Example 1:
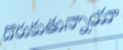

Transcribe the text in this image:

దొరుకుతున్నాయా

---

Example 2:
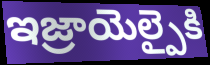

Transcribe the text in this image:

ఇజ్రాయెల్పైకి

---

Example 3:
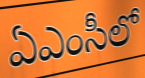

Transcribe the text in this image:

ఏఎంసీలో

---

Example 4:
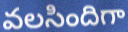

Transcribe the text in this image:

వలసిందిగా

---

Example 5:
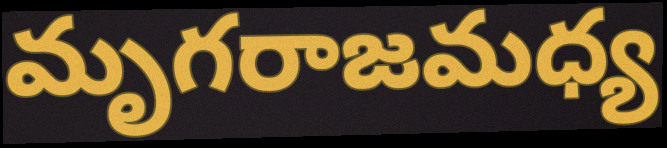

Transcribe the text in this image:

మృగరాజమధ్య